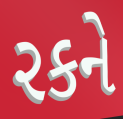
રકને